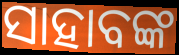
ସାହାବଙ୍କ